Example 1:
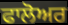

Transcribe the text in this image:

ਫਾਲੋਅਰ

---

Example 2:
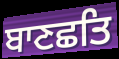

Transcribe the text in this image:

ਬਾਣਛਤਿ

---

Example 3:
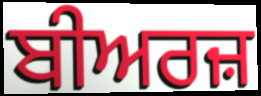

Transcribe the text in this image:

ਬੀਅਰਜ਼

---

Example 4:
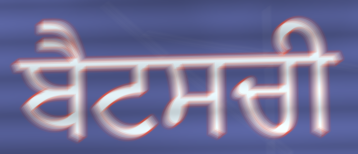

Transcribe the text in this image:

ਬੈਟਸਚੀ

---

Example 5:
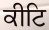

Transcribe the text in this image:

ਕੀਟਿ